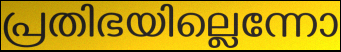
പ്രതിഭയില്ലെന്നോ